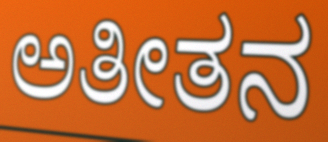
ಅತೀತನ